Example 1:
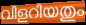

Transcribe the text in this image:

വിളറിയതും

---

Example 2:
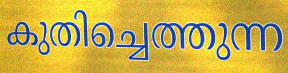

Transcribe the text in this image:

കുതിച്ചെത്തുന്ന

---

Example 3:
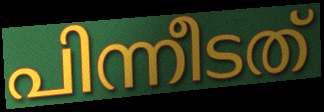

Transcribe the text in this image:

പിന്നീടത്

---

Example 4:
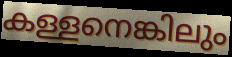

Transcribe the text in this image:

കള്ളനെങ്കിലും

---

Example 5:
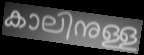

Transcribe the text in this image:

കാലിനുള്ള